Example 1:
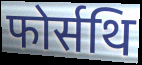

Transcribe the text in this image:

फोर्सथि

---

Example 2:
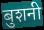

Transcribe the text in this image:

बुशनी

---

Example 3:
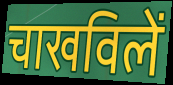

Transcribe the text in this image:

चाखविलें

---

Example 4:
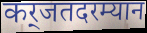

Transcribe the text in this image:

कर्जतदरम्यान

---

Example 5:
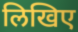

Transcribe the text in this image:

लिखिए